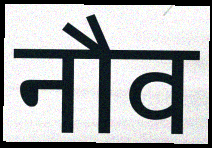
नौव